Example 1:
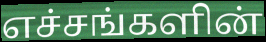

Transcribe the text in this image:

எச்சங்களின்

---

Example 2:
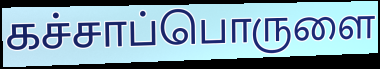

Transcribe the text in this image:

கச்சாப்பொருளை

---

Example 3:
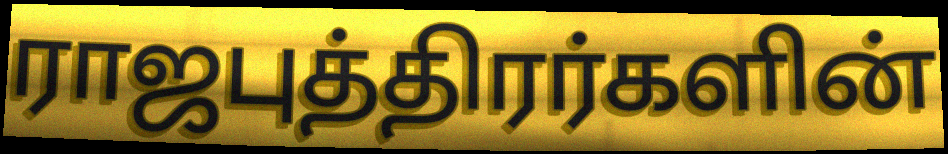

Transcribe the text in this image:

ராஜபுத்திரர்களின்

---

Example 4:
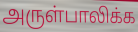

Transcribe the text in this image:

அருள்பாலிக்க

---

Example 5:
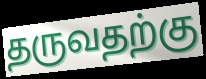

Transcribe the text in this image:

தருவதற்கு